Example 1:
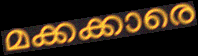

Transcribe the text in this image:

മക്കക്കാരെ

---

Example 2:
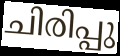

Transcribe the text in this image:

ചിരിപ്പു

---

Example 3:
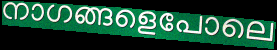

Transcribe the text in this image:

നാഗങ്ങളെപോലെ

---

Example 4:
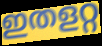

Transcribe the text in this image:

ഇതളറ്റ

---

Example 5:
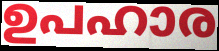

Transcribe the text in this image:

ഉപഹാര